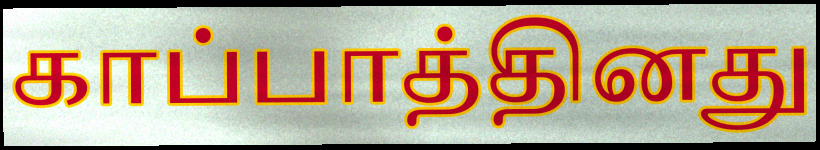
காப்பாத்தினது